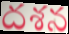
దశన